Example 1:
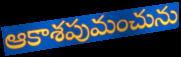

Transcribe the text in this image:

ఆకాశపుమంచును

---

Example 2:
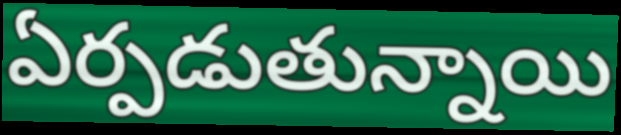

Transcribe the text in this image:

ఏర్పడుతున్నాయి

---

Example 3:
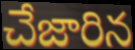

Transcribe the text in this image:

చేజారిన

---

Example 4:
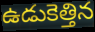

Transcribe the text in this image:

ఉడుకెత్తిన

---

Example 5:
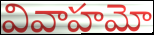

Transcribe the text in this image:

వివాహమో